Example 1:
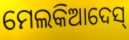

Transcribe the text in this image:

ମେଲକିଆଦେସ୍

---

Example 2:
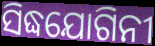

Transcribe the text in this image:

ସିଦ୍ଧଯୋଗିନୀ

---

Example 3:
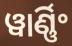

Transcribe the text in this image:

ୱାର୍ଣ୍ଣିଂ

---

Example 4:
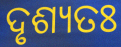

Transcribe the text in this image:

ଦୃଶ୍ୟତଃ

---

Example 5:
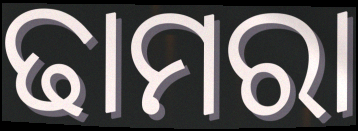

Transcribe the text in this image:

ଢାମରା